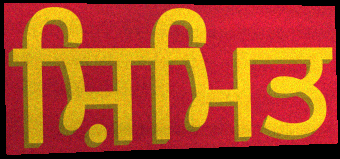
ਸ਼ਿਮਿਤ